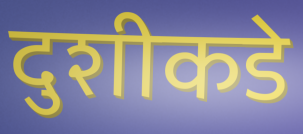
दुशीकडे